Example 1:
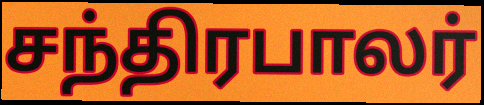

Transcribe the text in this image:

சந்திரபாலர்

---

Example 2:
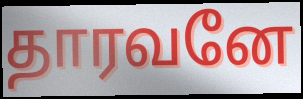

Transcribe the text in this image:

தாரவனே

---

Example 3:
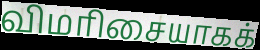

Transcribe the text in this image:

விமரிசையாகக்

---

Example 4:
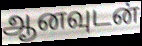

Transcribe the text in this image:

ஆனவுடன்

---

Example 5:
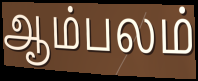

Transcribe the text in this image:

ஆம்பலம்